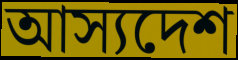
আস্যদেশ